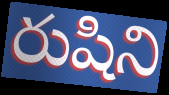
రుషిని